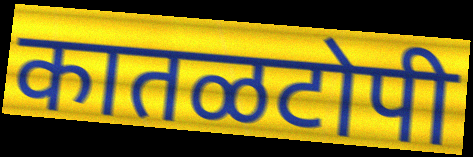
कातळटोपी